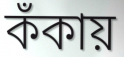
কঁকায়